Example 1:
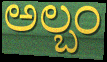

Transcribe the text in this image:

ಅಲ್ಬಂ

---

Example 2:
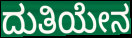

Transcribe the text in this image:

ದುತಿಯೇನ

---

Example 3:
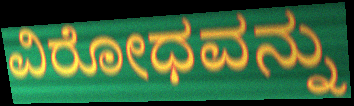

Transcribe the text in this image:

ವಿರೋಧವನ್ನು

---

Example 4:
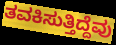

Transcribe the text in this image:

ತವಕಿಸುತ್ತಿದ್ದೆವು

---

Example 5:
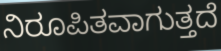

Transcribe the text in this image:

ನಿರೂಪಿತವಾಗುತ್ತದೆ